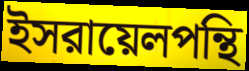
ইসরায়েলপন্থি